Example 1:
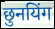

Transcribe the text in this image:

छुनयिंग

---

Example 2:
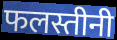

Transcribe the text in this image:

फलस्तीनी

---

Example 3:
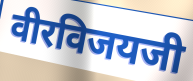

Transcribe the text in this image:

वीरविजयजी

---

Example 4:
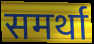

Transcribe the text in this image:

समर्था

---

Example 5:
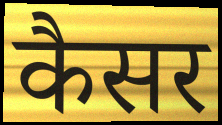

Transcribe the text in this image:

कैसर